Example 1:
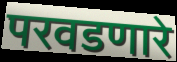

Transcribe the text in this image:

परवडणारे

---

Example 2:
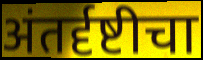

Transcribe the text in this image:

अंतर्दृष्टीचा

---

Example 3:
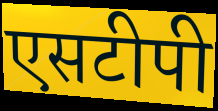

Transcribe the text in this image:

एसटीपी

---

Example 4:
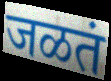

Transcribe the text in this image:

जळतं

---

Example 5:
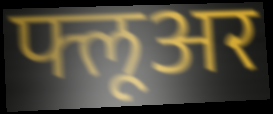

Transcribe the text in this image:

फ्लूअर